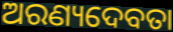
ଅରଣ୍ୟଦେବତା